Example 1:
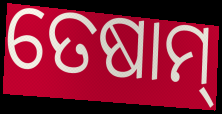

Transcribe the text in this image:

ତେଷାମ୍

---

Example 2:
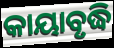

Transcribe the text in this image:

କାୟାବୃଦ୍ଧି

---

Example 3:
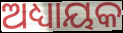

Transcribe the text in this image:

ଅଧ୍ୟାୟକ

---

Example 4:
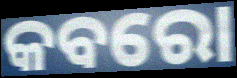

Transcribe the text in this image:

କବରୋ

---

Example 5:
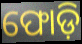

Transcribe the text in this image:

ଫୋଡ଼ି